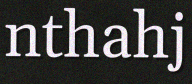
nthahj